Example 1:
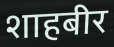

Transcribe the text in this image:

शाहबीर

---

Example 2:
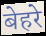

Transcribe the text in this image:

बेहरे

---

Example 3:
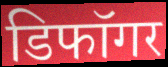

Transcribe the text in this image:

डिफॉगर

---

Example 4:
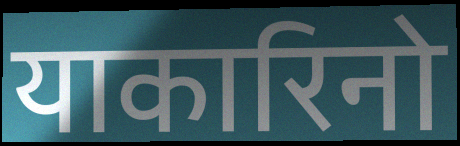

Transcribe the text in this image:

याकारिनो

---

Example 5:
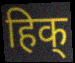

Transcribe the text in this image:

हिक्